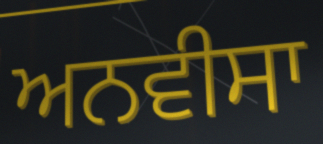
ਅਨਵੀਸਾ